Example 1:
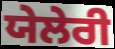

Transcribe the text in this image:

ਯੇਲੇਰੀ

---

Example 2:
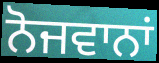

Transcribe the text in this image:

ਨੋਜਵਾਨਾਂ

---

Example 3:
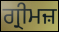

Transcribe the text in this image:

ਗ੍ਰੀਮਜ਼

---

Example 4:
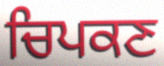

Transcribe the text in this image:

ਚਿਪਕਣ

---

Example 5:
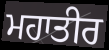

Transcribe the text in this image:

ਮਹਾਤੀਰ